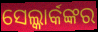
ସେଲ୍କାର୍କଙ୍କର